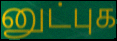
னுட்புக